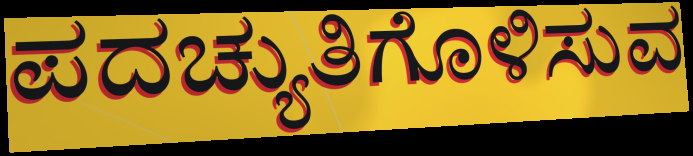
ಪದಚ್ಯುತಿಗೊಳಿಸುವ